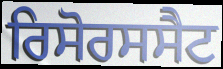
ਰਿਸੋਰਸਸੈਟ